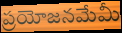
ప్రయోజనమేమీ